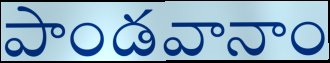
పాండవానాం